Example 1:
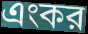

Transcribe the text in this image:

এংকর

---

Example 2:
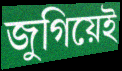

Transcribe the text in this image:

জুগিয়েই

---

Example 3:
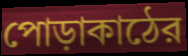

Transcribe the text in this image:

পোড়াকাঠের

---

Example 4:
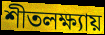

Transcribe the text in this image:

শীতলক্ষ্যায়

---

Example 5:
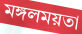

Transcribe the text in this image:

মঙ্গলময়তা